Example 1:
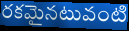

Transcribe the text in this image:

రకమైనటువంటి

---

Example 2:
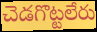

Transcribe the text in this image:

చెడగొట్టలేరు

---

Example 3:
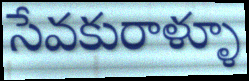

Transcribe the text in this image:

సేవకురాళ్ళూ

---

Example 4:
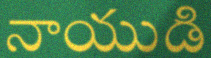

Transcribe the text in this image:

నాయుడి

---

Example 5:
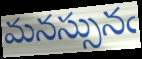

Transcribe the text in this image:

మనస్సునఁ